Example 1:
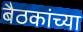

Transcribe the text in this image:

बैठकांच्या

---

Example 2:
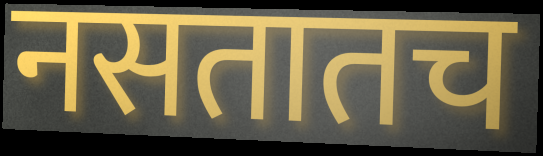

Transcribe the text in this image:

नसतातच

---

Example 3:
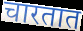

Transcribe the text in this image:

चारतात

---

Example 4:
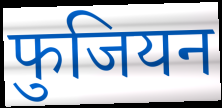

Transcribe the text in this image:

फुजियन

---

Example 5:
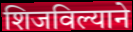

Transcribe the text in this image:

शिजविल्याने